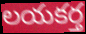
లయకర్త